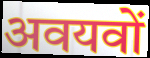
अवयवों